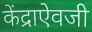
केंद्राऐवजी